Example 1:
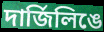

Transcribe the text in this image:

দার্জিলিঙে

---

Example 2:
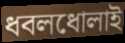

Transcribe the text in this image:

ধবলধোলাই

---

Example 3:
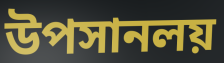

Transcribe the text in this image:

উপসানলয়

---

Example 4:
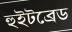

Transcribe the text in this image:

হুইটব্রেড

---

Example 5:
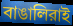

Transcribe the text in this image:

বাঙালিরাই